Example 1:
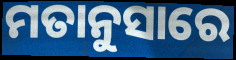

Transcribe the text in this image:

ମତାନୁସାରେ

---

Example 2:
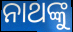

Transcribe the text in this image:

ନାଥଙ୍କୁ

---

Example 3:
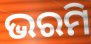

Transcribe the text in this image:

ଭରମି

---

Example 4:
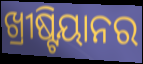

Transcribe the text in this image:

ଖ୍ରୀଷ୍ଟିୟାନର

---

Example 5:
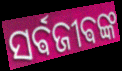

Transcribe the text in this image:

ସର୍ଵଜୀଵଙ୍କ